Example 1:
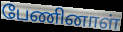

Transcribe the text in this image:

பேணினாள்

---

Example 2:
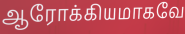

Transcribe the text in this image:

ஆரோக்கியமாகவே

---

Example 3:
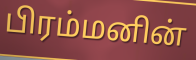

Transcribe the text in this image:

பிரம்மனின்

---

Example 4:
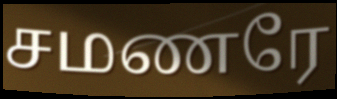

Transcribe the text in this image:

சமணரே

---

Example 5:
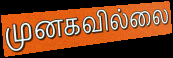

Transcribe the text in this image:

முனகவில்லை